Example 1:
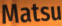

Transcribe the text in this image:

Matsu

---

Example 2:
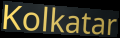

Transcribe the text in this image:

Kolkatar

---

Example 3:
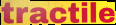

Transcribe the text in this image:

tractile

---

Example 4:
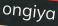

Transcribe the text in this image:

ongiya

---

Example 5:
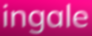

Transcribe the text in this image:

ingale